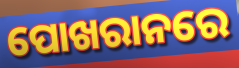
ପୋଖରାନରେ